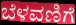
ಬೆಳವಣಿಗೆ